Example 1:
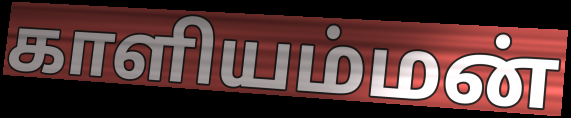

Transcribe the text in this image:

காளியம்மன்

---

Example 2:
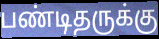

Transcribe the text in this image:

பண்டிதருக்கு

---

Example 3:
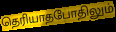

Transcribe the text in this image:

தெரியாதபோதிலும்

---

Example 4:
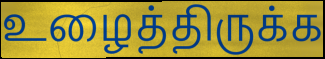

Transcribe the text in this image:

உழைத்திருக்க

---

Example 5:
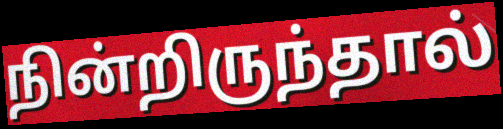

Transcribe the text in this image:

நின்றிருந்தால்